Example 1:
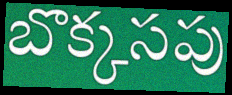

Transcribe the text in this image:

బొక్కసపు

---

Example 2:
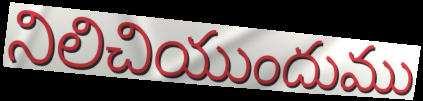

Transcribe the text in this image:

నిలిచియుందుము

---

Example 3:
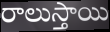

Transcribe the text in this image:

రాలుస్తాయి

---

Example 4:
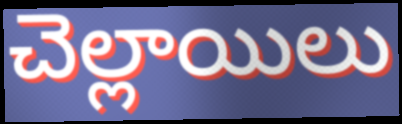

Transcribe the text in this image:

చెల్లాయిలు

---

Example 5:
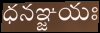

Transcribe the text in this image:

ధనఞ్జయః